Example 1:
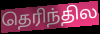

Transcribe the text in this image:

தெரிந்தில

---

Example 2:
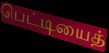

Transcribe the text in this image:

பெட்டியைத்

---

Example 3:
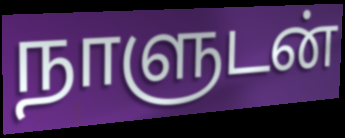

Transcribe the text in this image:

நாளுடன்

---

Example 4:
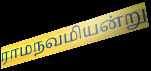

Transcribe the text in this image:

ராமநவமியன்று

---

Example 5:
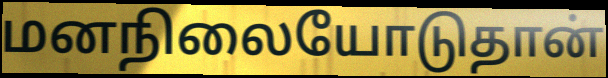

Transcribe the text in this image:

மனநிலையோடுதான்